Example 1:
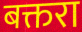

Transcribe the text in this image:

बक्तरा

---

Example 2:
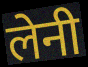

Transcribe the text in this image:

लेनी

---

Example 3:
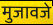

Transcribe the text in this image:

मुजावजे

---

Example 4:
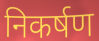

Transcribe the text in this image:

निकर्षण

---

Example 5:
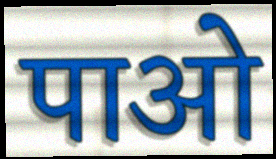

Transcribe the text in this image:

पाओ